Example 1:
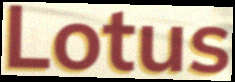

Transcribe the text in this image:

Lotus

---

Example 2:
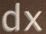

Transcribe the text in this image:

dx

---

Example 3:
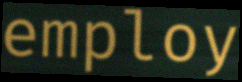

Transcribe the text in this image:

employ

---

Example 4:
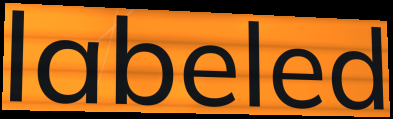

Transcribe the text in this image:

labeled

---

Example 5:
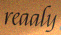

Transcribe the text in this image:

reaaly